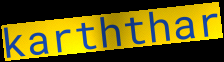
karththar